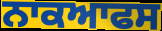
ਨਾਕਆਫਸ